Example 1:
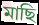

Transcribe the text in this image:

মাছি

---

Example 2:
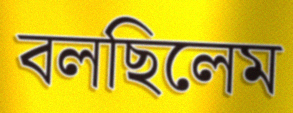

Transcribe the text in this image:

বলছিলেম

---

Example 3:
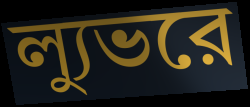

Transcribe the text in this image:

ল্যুভরে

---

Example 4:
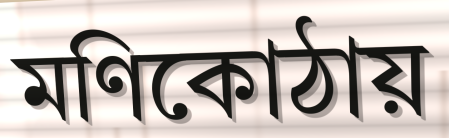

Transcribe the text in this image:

মণিকোঠায়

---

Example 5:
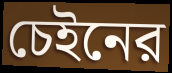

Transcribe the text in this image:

চেইনের